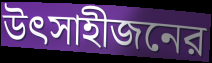
উৎসাহীজনের